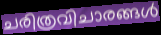
ചരിത്രവിചാരങ്ങൾ